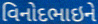
વિનોદભાઇને